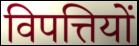
विपत्तियों